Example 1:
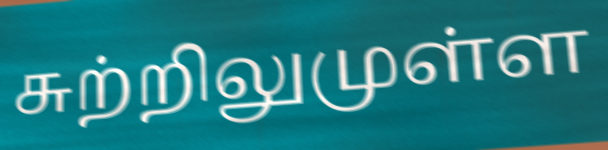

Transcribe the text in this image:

சுற்றிலுமுள்ள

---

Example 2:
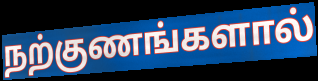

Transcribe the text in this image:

நற்குணங்களால்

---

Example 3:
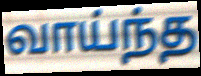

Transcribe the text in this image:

வாய்ந்த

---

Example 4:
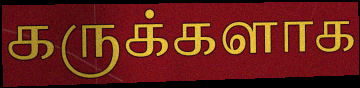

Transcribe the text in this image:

கருக்களாக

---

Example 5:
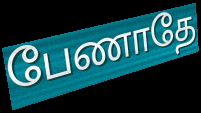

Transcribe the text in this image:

பேணாதே